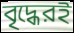
বৃদ্ধেরই